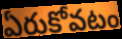
ఏరుకోవటం